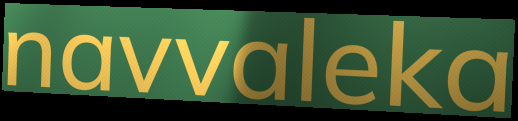
navvaleka